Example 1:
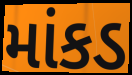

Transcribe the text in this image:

માંકડ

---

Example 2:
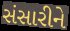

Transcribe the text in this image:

સંસારીને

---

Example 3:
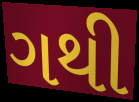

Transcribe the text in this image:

ગથી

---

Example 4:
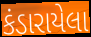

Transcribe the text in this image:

કંડારાયેલા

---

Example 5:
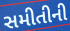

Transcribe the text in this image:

સમીતીની